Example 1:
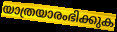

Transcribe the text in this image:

യാത്രയാരംഭിക്കുക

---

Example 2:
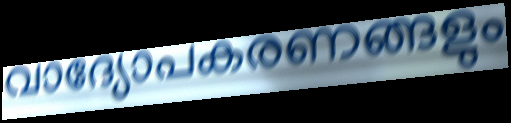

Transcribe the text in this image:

വാദ്യോപകരണങ്ങളും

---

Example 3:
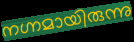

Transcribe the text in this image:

നഗ്നമായിരുന്നു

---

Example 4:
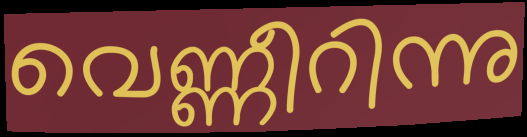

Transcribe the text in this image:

വെണ്ണീറിന്നു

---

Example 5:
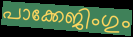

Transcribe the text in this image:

പാക്കേജിംഗും